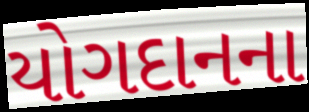
યોગદાનના